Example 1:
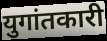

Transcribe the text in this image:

युगांतकारी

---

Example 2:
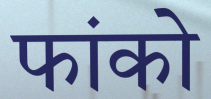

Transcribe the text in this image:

फांको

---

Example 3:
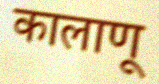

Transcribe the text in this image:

कालाणू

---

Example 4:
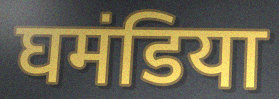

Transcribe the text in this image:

घमंडिया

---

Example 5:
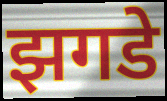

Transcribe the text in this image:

झगडे